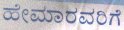
ಹೇಮಾರವರಿಗೆ